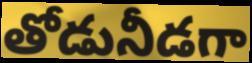
తోడునీడగా